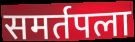
समर्तपला